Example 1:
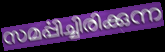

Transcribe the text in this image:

സമൎപ്പിച്ചിരിക്കുന്ന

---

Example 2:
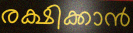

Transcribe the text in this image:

രക്ഷിക്കാൻ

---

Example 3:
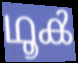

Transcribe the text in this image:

ഥൂൿ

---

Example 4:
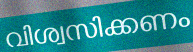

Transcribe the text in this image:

വിശ്വസിക്കണം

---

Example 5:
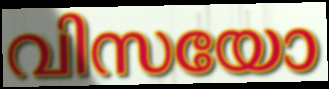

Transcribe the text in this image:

വിസയോ